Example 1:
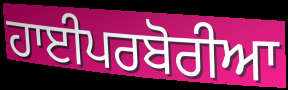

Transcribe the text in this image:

ਹਾਈਪਰਬੋਰੀਆ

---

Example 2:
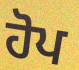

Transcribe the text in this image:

ਹੋਪ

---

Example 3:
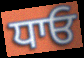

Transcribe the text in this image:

ਧਾਓ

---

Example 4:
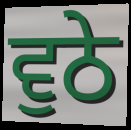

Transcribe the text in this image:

ਵੁਠੇ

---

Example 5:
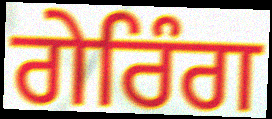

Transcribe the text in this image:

ਗੇਰਿੰਗ